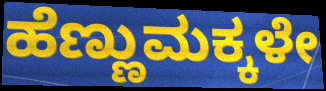
ಹೆಣ್ಣುಮಕ್ಕಳೇ